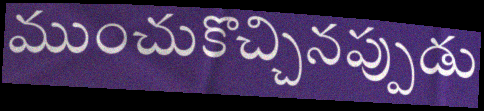
ముంచుకొచ్చినప్పుడు